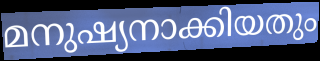
മനുഷ്യനാക്കിയതും